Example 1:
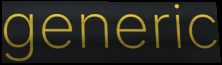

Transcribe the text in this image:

generic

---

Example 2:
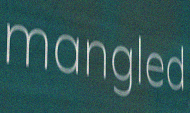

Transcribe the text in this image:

mangled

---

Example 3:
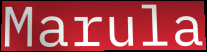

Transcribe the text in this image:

Marula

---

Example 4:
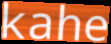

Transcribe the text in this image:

kahe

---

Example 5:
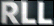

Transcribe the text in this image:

RLL